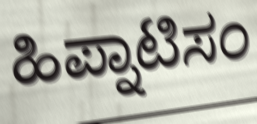
ಹಿಪ್ನಾಟಿಸಂ